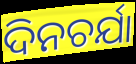
ଦିନଚର୍ଯା